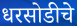
धरसोडीचे